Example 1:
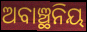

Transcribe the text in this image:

ଅବାଞ୍ଛନିୟ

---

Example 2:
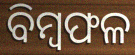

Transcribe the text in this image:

ବିମ୍ୱଫଳ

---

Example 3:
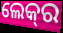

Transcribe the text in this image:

ଲେକ୍‍ର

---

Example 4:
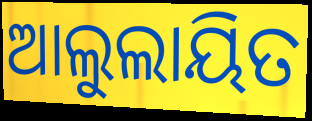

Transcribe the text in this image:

ଆଲୁଲାୟିତ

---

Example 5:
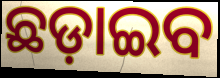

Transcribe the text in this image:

ଛଡ଼ାଇବ